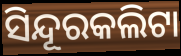
ସିନ୍ଦୂରକଲିଟା